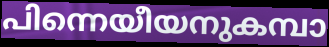
പിന്നെയീയനുകമ്പാ